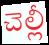
చెల్లీ